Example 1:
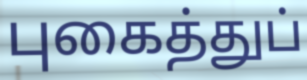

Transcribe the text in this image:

புகைத்துப்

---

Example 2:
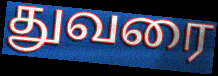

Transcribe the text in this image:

துவரை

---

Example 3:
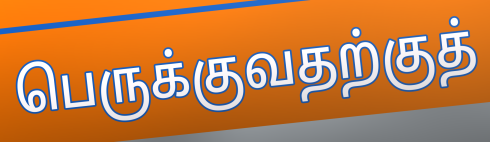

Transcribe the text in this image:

பெருக்குவதற்குத்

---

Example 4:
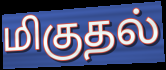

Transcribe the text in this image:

மிகுதல்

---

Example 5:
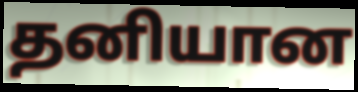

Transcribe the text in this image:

தனியான